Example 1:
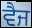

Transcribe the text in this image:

ਵੈਜ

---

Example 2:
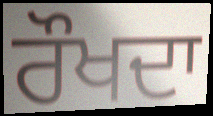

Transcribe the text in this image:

ਰੌਖਦਾ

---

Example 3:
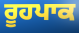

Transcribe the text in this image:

ਰੂਹਪਾਕ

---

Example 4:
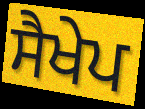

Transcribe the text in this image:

ਸੈਖੇਪ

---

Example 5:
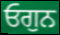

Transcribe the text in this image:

ਓਗੁਨ